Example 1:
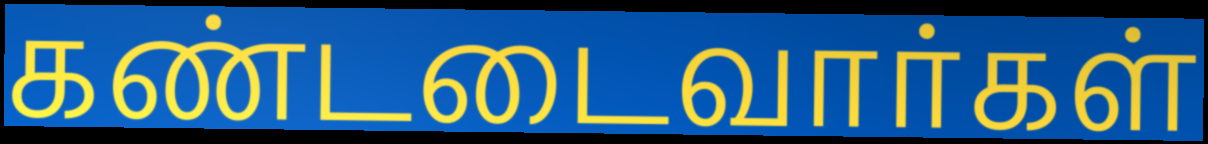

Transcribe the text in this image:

கண்டடைவார்கள்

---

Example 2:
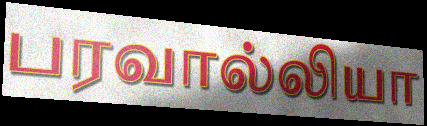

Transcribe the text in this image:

பரவால்லியா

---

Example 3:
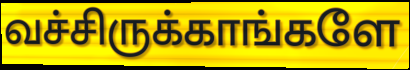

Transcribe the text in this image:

வச்சிருக்காங்களே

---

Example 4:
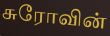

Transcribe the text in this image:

சுரோவின்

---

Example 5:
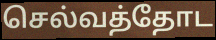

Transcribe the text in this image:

செல்வத்தோட